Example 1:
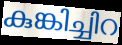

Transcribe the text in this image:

കുങ്കിച്ചിറ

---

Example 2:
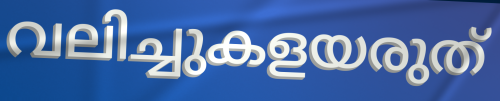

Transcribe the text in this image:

വലിച്ചുകളയരുത്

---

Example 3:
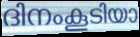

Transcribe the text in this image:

ദിനംകൂടിയാ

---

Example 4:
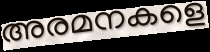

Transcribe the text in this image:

അരമനകളെ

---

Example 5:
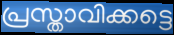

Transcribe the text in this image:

പ്രസ്താവിക്കട്ടെ